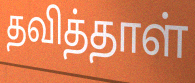
தவித்தாள்